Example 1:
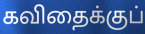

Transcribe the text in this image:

கவிதைக்குப்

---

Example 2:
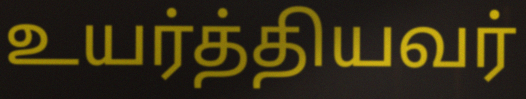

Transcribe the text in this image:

உயர்த்தியவர்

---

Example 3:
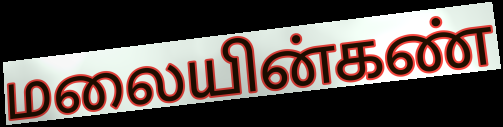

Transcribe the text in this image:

மலையின்கண்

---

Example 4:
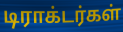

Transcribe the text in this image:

டிராக்டர்கள்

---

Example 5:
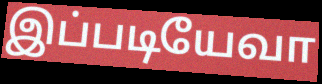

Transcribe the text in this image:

இப்படியேவா